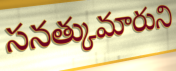
సనత్కుమారుని